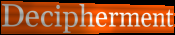
Decipherment